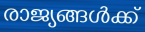
രാജ്യങ്ങൾക്ക്